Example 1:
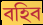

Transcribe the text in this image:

বহিব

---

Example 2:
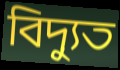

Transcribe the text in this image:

বিদ্যুত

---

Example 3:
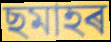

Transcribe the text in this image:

ছমাহৰ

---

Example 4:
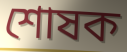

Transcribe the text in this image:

শোষক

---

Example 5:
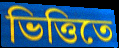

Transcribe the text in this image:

ভিত্তিতে